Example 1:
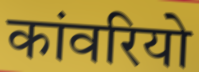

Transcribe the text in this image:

कांवरियो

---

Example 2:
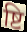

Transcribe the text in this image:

ष्टि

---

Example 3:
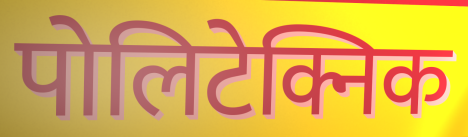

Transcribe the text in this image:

पोलिटेक्निक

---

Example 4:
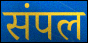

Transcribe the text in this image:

संपल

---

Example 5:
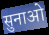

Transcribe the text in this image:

सुनाओ